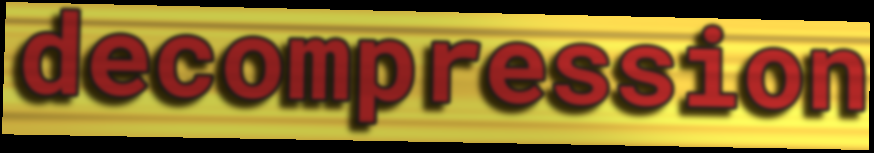
decompression